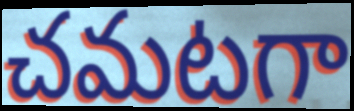
చమటగా